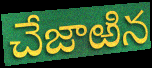
చేజాఱిన